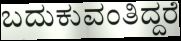
ಬದುಕುವಂತಿದ್ದರೆ